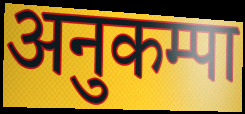
अनुकम्पा